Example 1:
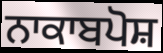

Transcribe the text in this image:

ਨਾਕਾਬਪੋਸ਼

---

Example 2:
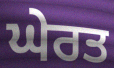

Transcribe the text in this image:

ਘੇਰਤ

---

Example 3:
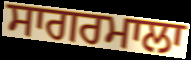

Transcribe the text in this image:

ਸਾਗਰਮਾਲਾ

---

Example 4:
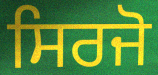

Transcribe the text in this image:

ਸਿਰਜੋ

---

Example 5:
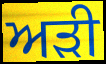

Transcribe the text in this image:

ਅੜੀ